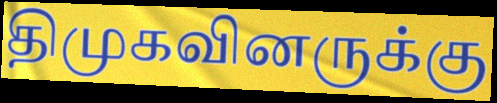
திமுகவினருக்கு